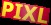
PIXL